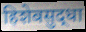
हिशेबसुद्धा